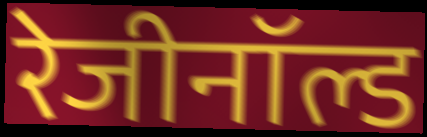
रेजीनॉल्ड